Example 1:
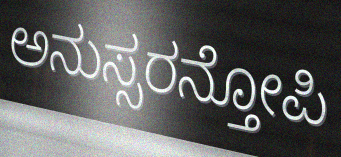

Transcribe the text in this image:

ಅನುಸ್ಸರನ್ತೋಪಿ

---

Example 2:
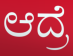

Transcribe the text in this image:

ಆದ್ರೆ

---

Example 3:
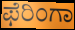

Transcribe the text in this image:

ಫೆರಿಂಗಾ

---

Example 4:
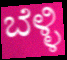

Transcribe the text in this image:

ಬೆಳ್ಳಿ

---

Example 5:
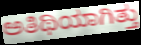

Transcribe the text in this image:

ಅತಿಥಿಯಾಗಿತ್ತು